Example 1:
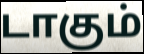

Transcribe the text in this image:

டாகும்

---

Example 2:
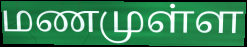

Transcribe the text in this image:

மணமுள்ள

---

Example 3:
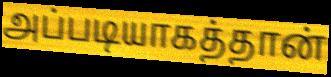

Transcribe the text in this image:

அப்படியாகத்தான்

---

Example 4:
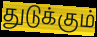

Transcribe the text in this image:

துடுக்கும்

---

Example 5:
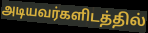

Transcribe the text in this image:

அடியவர்களிடத்தில்